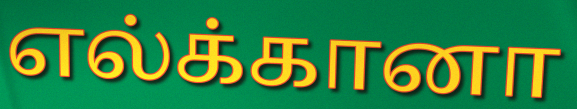
எல்க்கானா